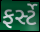
ફર્સ્ટે